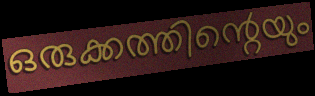
ഒരുക്കത്തിന്റെയും